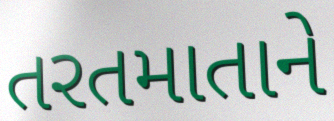
તરતમાતાને